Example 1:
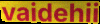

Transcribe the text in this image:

vaidehii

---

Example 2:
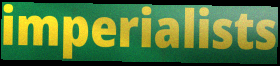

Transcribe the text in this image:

imperialists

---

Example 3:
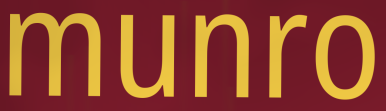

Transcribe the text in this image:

munro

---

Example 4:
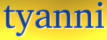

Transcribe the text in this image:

tyanni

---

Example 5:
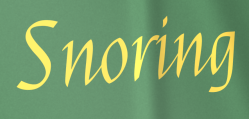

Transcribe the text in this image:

Snoring